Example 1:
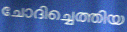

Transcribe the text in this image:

ചോദിച്ചെത്തിയ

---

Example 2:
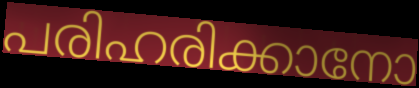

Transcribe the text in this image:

പരിഹരിക്കാനോ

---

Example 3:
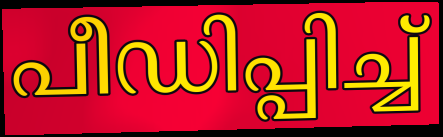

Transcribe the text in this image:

പീഡിപ്പിച്ച്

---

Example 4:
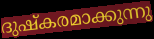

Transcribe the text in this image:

ദുഷ്കരമാക്കുന്നു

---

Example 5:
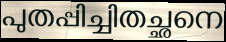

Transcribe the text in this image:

പുതപ്പിച്ചിതച്ഛനെ